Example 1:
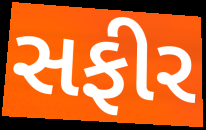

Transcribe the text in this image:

સફીર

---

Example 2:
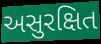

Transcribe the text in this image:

અસુરક્ષિત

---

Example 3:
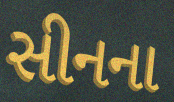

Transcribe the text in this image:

સીનના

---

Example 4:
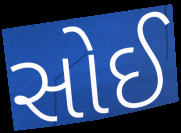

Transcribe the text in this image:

સોઈ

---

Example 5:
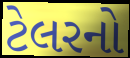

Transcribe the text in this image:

ટેલરનો